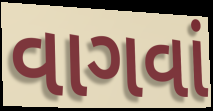
વાગવાં